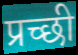
प्रच्छी